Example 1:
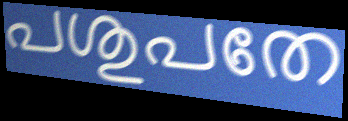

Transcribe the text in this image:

പശുപതേ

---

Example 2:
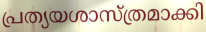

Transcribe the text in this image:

പ്രത്യയശാസ്ത്രമാക്കി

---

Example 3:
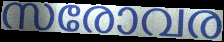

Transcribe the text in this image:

സരോവര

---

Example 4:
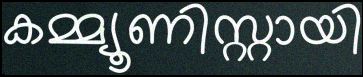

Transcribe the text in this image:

കമ്മ്യൂണിസ്റ്റായി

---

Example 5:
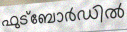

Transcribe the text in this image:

ഫുട്ബോർഡിൽ